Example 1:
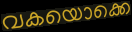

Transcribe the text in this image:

വകയൊക്കെ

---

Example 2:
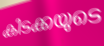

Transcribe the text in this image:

കിടക്കയുടെ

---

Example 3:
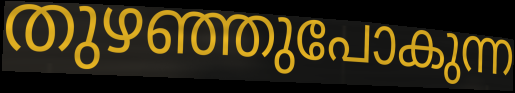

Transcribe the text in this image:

തുഴഞ്ഞുപോകുന്ന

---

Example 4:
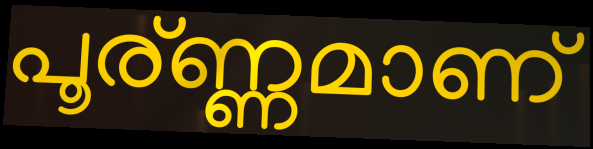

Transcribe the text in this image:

പൂര്ണ്ണമാണ്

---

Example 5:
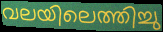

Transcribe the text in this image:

വലയിലെത്തിച്ചു